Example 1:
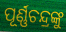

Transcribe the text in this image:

ପୂର୍ଣ୍ଣଚନ୍ଦ୍ରଙ୍କୁ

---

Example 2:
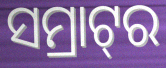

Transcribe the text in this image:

ସମ୍ରାଟ୍‌ର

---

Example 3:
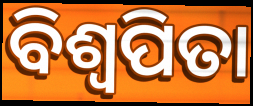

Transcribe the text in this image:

ବିଶ୍ଵପିତା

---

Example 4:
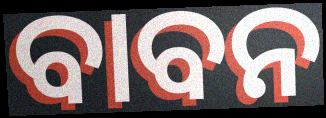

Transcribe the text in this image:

ବାବନ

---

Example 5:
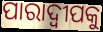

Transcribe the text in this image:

ପାରାଦ୍ୱୀପକୁ